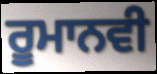
ਰੂਮਾਨਵੀ